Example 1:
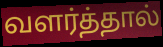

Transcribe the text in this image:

வளர்த்தால்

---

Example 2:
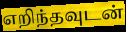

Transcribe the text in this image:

எறிந்தவுடன்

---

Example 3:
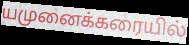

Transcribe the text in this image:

யமுனைக்கரையில்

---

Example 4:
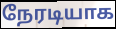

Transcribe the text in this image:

நேரடியாக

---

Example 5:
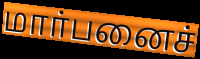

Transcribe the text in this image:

மார்பனைச்